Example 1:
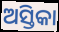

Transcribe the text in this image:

ଅସ୍ତିକା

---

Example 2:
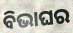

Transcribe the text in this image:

ବିଭାଘର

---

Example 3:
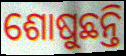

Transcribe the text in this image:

ଶୋଷୁଛନ୍ତି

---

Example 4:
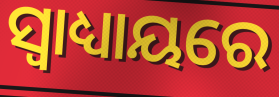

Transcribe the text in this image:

ସ୍ଵାଧ୍ୟାୟରେ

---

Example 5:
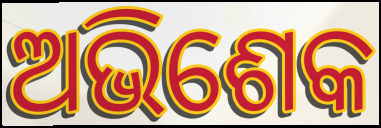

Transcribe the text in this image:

ଅଭିଶେକ